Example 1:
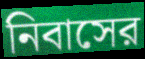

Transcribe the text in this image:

নিবাসের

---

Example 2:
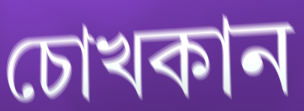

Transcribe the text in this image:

চোখকান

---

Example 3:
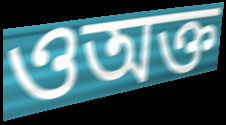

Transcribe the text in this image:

ওঅক্ত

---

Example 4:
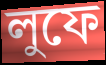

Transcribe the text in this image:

লুফে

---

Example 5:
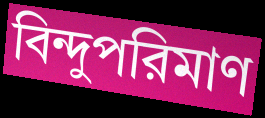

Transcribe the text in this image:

বিন্দুপরিমাণ